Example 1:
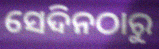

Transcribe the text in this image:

ସେଦିନଠାରୁ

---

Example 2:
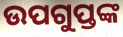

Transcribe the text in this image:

ଉପଗୁପ୍ତଙ୍କ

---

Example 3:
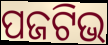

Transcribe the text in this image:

ପଜଟିଭ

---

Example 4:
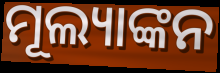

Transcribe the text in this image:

ମୂଲ୍ୟାଙ୍କନ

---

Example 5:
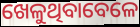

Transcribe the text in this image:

ଖେଳୁଥିବାବେଳେ